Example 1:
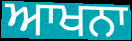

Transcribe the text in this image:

ਆਖਨਾ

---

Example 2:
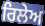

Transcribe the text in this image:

ਰਿਲੇਅ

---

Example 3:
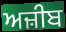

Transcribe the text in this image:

ਅਜ਼ੀਬ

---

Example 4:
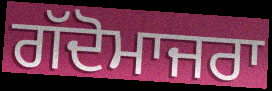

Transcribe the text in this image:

ਗੱਦੋਮਾਜਰਾ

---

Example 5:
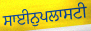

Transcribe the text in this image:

ਸਾਈਨੁਪਲਾਸਟੀ